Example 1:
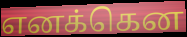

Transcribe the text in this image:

எனக்கென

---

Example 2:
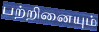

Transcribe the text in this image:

பற்றினையும்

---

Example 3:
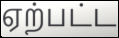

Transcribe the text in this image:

ஏற்பட்ட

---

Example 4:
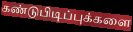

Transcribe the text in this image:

கண்டுபிடிப்புக்களை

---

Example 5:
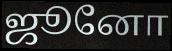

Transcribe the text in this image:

ஜூனோ